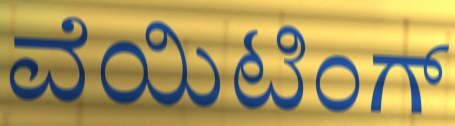
ವೆಯಿಟಿಂಗ್